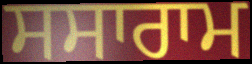
ਸਸਾਰਾਮ